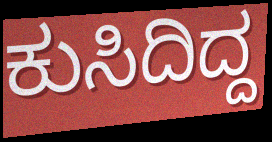
ಕುಸಿದಿದ್ದ